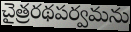
చైత్రరథపర్వమను